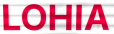
LOHIA